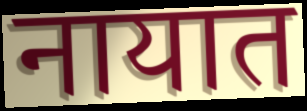
नायात